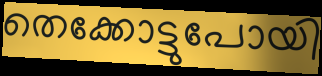
തെക്കോട്ടുപോയി